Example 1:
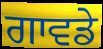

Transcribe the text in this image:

ਗਾਵਡੇ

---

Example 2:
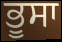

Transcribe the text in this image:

ਭੂਸਾ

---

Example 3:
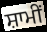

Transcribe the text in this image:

ਸ਼ਾਮੀਂ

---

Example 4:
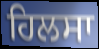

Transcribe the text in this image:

ਹਿਲਸਾ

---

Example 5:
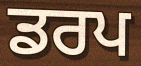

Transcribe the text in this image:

ਡਰਪ